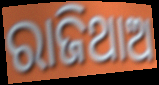
ରାଜିଥାଅ